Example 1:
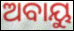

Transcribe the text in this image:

ଅବାୟୁ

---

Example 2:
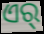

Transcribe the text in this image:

ଏର୍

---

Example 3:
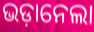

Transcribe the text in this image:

ଭଡ଼ାନେଲା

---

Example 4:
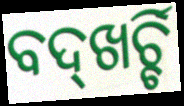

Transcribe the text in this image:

ବଦ୍‌ଖର୍ଚ୍ଚି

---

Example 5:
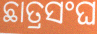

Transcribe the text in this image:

ଛାତ୍ରସଂଘ